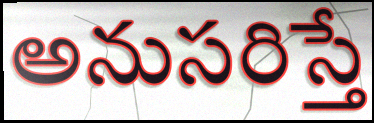
అనుసరిస్తే